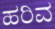
ಹರಿವ